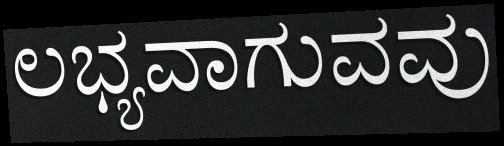
ಲಭ್ಯವಾಗುವವು